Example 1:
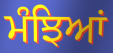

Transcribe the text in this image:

ਮੰਝਿਆਂ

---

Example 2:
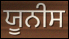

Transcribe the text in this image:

ਯੂਨੀਸ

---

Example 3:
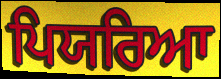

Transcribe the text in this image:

ਪਿਯਰਿਆ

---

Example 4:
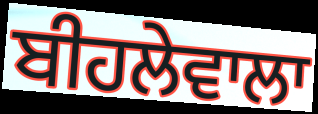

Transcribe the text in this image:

ਬੀਹਲੇਵਾਲਾ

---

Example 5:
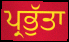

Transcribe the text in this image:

ਪ੍ਰਭੁੱਤਾ